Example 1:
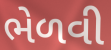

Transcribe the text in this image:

ભેળવી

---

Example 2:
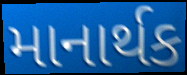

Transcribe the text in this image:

માનાર્થક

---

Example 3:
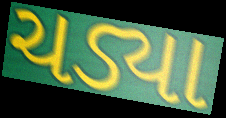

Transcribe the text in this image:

ચડ્યા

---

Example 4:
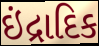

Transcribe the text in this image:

ઇંદ્રાદિક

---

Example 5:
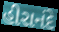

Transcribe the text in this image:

હીરાનંદે